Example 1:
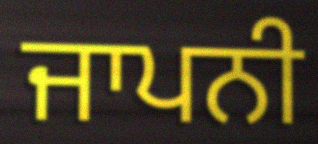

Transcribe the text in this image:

ਜਾਪਨੀ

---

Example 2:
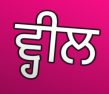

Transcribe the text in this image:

ਵ੍ਹੀਲ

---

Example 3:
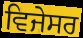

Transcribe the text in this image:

ਵਿਜੇਸਰ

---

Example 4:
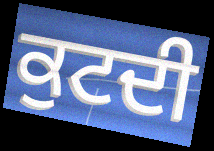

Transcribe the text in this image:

ਕੁਟਦੀ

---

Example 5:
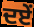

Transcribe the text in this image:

ਦਏਂ